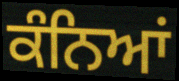
ਕੰਨਿਆਂ